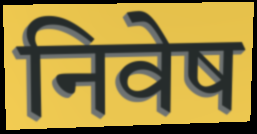
निवेष